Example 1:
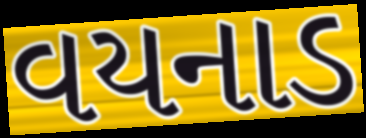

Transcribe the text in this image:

વયનાડ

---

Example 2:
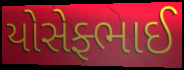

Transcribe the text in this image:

યોસેફ્ભાઈ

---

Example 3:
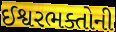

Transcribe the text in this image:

ઈશ્વરભક્તોની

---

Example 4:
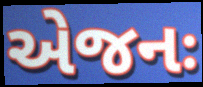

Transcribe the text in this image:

એજનઃ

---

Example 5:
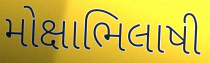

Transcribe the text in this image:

મોક્ષાભિલાષી